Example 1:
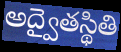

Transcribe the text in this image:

అద్వైతస్థితి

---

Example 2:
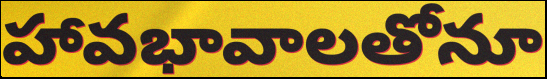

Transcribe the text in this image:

హావభావాలతోనూ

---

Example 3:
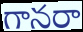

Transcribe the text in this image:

గానరా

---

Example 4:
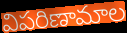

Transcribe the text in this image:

విపరిణామాల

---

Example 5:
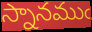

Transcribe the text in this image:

స్నానముఁ